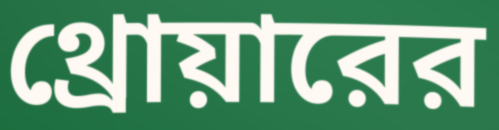
থ্রোয়ারের